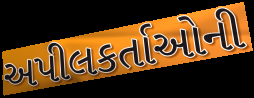
અપીલકર્તાઓની